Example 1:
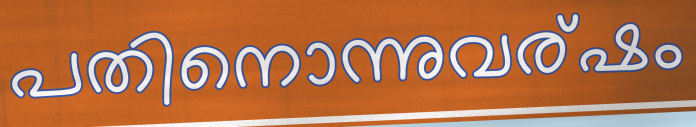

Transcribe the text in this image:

പതിനൊന്നുവര്ഷം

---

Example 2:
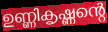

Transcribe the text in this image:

ഉണ്ണികൃഷ്ണന്റെ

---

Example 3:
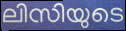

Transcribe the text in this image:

ലിസിയുടെ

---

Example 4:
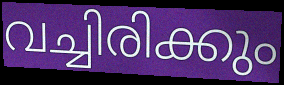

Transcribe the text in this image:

വച്ചിരിക്കും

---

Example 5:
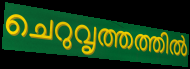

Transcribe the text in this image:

ചെറുവൃത്തത്തിൽ